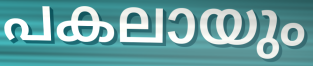
പകലായും